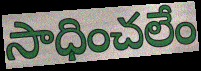
సాధించలేం